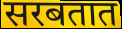
सरबतात